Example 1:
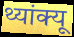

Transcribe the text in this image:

थ्यांक्यू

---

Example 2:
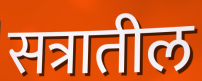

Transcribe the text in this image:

सत्रातील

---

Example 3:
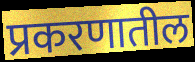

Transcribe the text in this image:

प्रकरणातील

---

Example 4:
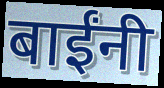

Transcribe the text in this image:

बाईंनी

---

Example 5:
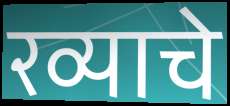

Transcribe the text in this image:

रव्याचे